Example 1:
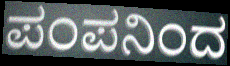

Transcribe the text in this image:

ಪಂಪನಿಂದ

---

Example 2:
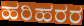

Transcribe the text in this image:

ಹರಿಹರರ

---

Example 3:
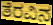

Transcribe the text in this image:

ತೆರವಿನ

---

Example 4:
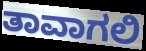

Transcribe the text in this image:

ತಾವಾಗಲಿ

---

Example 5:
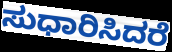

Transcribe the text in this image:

ಸುಧಾರಿಸಿದರೆ